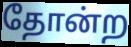
தோன்ற